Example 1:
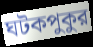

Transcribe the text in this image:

ঘটকপুকুর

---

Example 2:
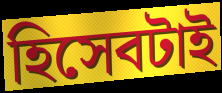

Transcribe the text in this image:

হিসেবটাই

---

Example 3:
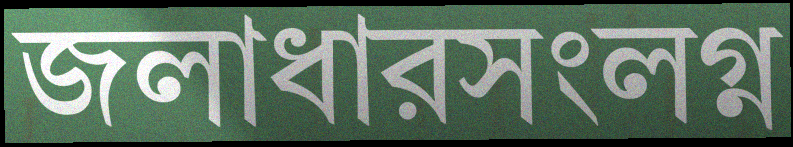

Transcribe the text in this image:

জলাধারসংলগ্ন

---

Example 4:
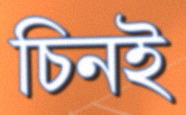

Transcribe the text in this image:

চিনই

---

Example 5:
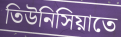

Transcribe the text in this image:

তিউনিসিয়াতে